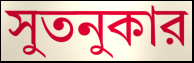
সুতনুকার